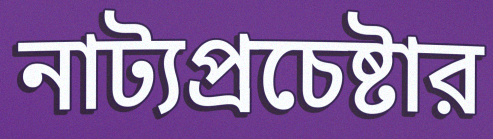
নাট্যপ্রচেষ্টার